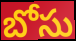
బోసు